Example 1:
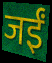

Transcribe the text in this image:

जईं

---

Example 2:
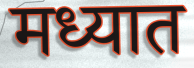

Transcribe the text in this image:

मध्यात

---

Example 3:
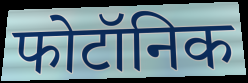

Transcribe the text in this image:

फोटॉनिक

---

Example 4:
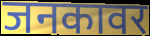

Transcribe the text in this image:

जनकावर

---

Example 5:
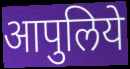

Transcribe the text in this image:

आपुलिये